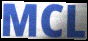
MCL